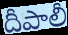
దీపాలీ